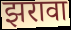
झरावा